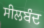
ਸੀਲਬੰਦ